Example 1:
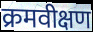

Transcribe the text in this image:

क्रमवीक्षण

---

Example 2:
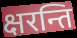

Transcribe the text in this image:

क्षरन्ति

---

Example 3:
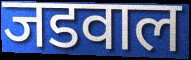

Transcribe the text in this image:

जडवाल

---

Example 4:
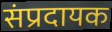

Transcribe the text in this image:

संप्रदायक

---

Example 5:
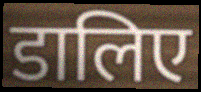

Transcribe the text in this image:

डालिए